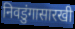
निवडुंगासारखी